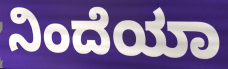
ನಿಂದೆಯಾ